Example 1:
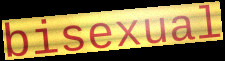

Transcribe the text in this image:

bisexual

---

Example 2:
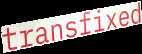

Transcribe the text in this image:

transfixed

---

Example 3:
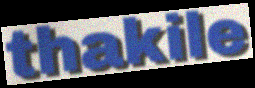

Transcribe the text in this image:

thakile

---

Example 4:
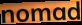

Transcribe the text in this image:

nomad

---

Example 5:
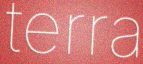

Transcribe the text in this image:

terra